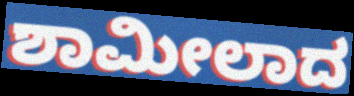
ಶಾಮೀಲಾದ